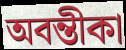
অবন্তীকা